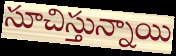
సూచిస్తున్నాయి